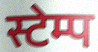
स्टेम्प